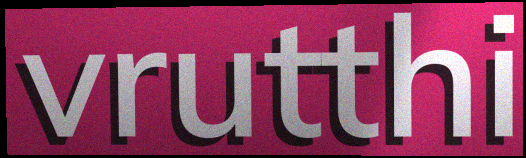
vrutthi